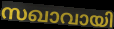
സഖാവായി